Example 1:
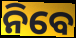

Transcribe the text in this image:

ନିବେ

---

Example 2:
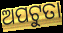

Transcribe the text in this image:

ଅପଟୁତା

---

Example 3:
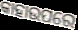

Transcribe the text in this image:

କାହାଉପରେ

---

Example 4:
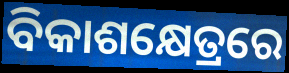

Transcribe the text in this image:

ବିକାଶକ୍ଷେତ୍ରରେ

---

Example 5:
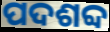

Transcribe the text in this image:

ପଦଶବ୍ଦ